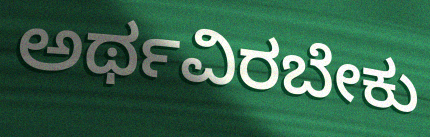
ಅರ್ಥವಿರಬೇಕು